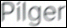
Pilger